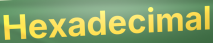
Hexadecimal